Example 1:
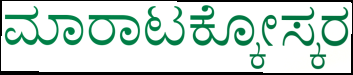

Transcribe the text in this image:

ಮಾರಾಟಕ್ಕೋಸ್ಕರ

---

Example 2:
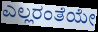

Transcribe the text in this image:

ಎಲ್ಲರಂತೆಯೇ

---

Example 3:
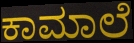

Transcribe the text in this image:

ಕಾಮಾಲೆ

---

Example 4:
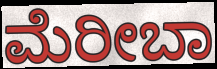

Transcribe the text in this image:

ಮೆರೀಬಾ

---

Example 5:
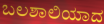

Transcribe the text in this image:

ಬಲಶಾಲಿಯಾದ